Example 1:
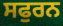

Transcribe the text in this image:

ਸਫੁਰਨ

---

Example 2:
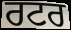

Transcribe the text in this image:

ਰਟਰ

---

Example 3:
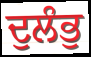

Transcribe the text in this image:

ਦੁਲੰਭੁ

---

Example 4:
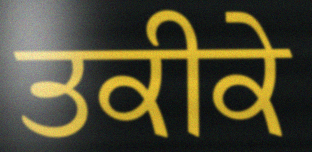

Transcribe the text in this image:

ਤਕੀਕੇ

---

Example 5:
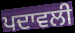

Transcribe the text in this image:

ਪਦਾਵਲੀ